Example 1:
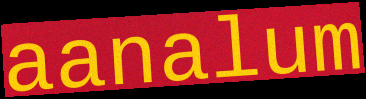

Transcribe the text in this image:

aanalum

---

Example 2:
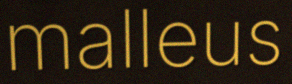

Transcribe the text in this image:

malleus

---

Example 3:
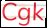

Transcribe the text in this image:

Cgk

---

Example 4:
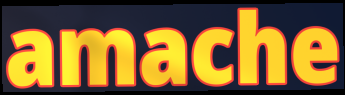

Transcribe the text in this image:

amache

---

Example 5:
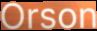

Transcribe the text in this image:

Orson